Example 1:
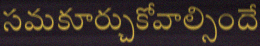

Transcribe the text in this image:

సమకూర్చుకోవాల్సిందే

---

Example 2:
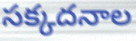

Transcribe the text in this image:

సక్కదనాల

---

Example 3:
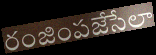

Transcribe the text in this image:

రంజింపజేసేలా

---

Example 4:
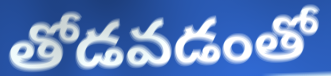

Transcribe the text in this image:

తోడవడంతో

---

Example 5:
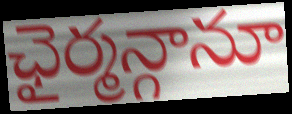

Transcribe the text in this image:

ఛైర్మన్గానూ